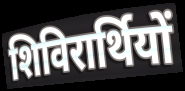
शिविरार्थियों